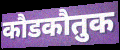
कौडकौतुक